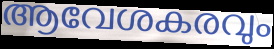
ആവേശകരവും